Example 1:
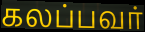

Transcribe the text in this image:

கலப்பவர்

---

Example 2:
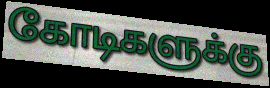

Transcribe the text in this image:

கோடிகளுக்கு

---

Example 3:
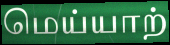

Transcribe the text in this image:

மெய்யாற்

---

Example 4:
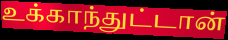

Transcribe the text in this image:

உக்காந்துட்டான்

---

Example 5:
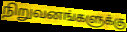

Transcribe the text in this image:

நிறுவனங்களுக்கு